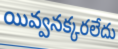
యివ్వనక్కరలేదు